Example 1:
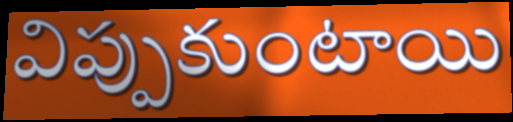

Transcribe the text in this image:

విప్పుకుంటాయి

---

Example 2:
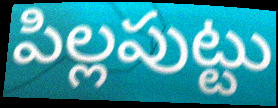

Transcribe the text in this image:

పిల్లపుట్టు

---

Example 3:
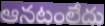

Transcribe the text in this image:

ఆనటంలేదు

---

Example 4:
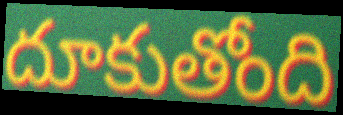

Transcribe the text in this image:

దూకుతోంది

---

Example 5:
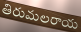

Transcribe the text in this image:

తిరుమలరాయ